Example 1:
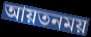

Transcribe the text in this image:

আয়তনময়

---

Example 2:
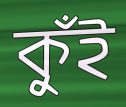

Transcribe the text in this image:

কুঁই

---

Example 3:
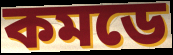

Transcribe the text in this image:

কমডে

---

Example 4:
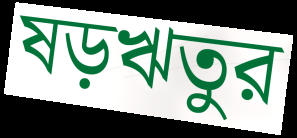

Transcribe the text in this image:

ষড়ঋতুর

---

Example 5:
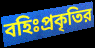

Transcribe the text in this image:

বহিঃপ্রকৃতির